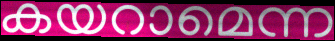
കയറാമെന്ന